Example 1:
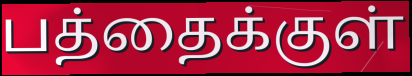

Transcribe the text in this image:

பத்தைக்குள்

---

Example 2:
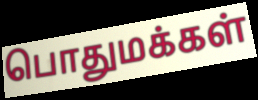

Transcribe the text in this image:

பொதுமக்கள்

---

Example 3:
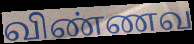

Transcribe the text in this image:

விண்ணவ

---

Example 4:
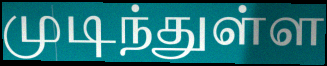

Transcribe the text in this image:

முடிந்துள்ள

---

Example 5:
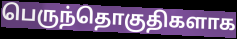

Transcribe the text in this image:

பெருந்தொகுதிகளாக